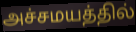
அச்சமயத்தில்